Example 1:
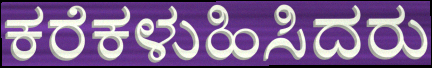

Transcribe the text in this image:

ಕರೆಕಳುಹಿಸಿದರು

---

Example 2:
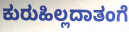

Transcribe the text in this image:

ಕುರುಹಿಲ್ಲದಾತಂಗೆ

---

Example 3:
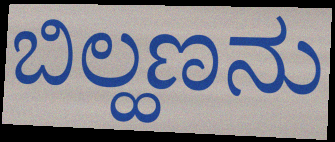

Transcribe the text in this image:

ಬಿಲ್ಹಣನು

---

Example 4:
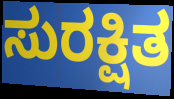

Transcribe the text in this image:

ಸುರಕ್ಷಿತ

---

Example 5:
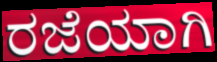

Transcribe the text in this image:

ರಜೆಯಾಗಿ